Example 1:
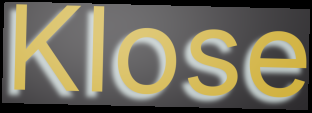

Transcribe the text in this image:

Klose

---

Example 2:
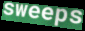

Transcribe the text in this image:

sweeps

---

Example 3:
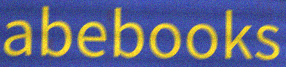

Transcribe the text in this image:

abebooks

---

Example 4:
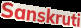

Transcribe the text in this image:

Sanskruti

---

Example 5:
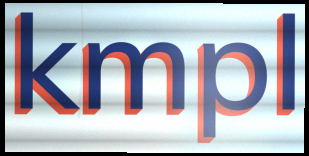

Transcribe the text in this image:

kmpl